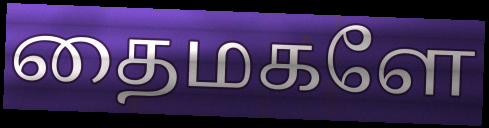
தைமகளே